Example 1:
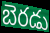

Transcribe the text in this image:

బెరడు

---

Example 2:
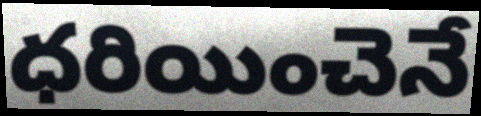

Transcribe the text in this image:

ధరియించెనే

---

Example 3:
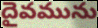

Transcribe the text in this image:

దైవమును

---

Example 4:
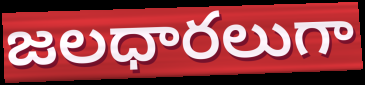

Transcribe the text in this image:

జలధారలుగా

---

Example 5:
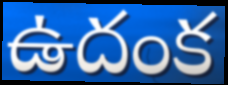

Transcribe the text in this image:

ఉదంక